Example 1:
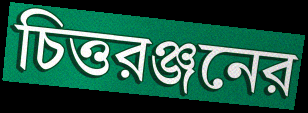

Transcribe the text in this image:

চিত্তরঞ্জনের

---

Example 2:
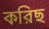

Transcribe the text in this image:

করিছ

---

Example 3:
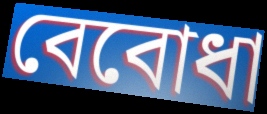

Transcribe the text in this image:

বেবোধা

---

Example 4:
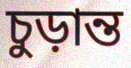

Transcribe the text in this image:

চুড়ান্ত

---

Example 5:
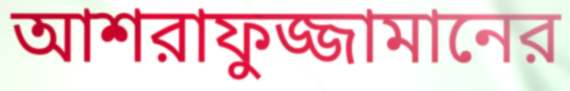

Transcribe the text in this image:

আশরাফুজ্জামানের